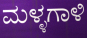
ಮಳ್ಳಗಾಳಿ